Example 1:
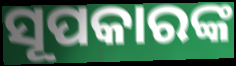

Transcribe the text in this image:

ସୂପକାରଙ୍କ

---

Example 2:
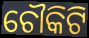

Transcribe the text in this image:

ଚୌକିଟି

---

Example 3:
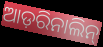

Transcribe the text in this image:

ଆଡ଼ରିନାଲିନ୍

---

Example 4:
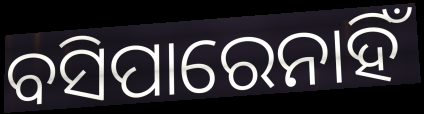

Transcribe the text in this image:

ବସିପାରେନାହିଁ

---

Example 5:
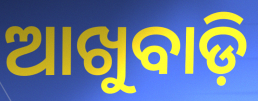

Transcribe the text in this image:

ଆଖୁବାଡ଼ି